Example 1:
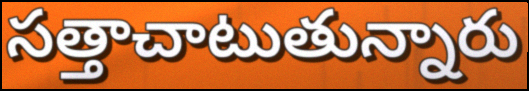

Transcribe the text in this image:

సత్తాచాటుతున్నారు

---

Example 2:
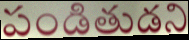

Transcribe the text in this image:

పండితుడని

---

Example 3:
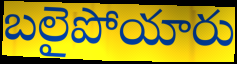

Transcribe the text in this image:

బలైపోయారు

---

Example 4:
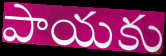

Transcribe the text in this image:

పాయకు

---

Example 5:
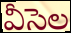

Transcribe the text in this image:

వీసెల